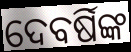
ଦେବର୍ଷିଙ୍କ